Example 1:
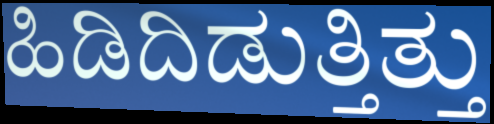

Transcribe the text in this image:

ಹಿಡಿದಿಡುತ್ತಿತ್ತು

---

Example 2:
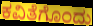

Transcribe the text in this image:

ಕವಿತೆಗೊಂದು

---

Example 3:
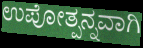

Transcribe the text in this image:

ಉಪೋತ್ಪನ್ನವಾಗಿ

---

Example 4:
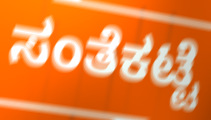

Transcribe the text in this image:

ಸಂತೆಕಟ್ಟೆ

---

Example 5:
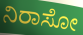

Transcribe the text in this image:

ನಿರಾಸೋ